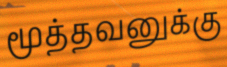
மூத்தவனுக்கு